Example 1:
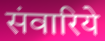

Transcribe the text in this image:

संवारिये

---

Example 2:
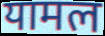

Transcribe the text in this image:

यामल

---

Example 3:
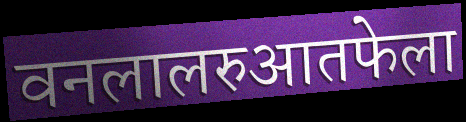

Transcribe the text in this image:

वनलालरुआतफेला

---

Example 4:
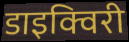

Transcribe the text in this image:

डाइक्विरी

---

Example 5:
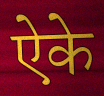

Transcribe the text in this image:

ऐके